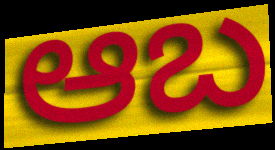
ఆబ